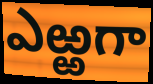
ఎఱ్ఱగా